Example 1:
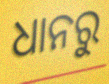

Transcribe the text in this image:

ଧାନରୁ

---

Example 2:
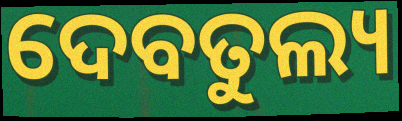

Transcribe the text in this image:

ଦେବତୁଲ୍ୟ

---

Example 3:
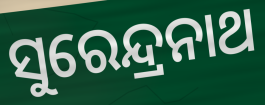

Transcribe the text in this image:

ସୁରେନ୍ଦ୍ରନାଥ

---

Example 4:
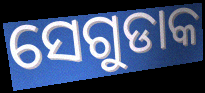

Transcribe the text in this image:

ସେଗୁଡାକ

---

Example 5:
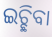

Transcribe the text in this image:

ଇଚ୍ଛିବା